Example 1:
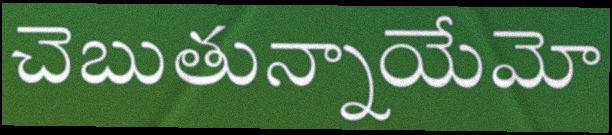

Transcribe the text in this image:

చెబుతున్నాయేమో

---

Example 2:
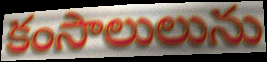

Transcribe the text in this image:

కంసాలులును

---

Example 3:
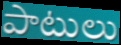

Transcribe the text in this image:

పాటులు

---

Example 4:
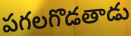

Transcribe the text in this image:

పగలగొడతాడు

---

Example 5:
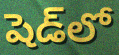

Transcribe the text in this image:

షెడ్‌లో